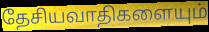
தேசியவாதிகளையும்